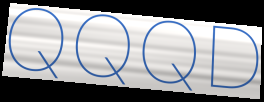
QQQD